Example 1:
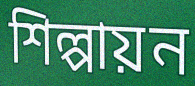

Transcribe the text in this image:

শিল্পায়ন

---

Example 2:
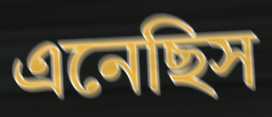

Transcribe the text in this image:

এনেছিস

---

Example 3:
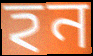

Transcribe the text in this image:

হন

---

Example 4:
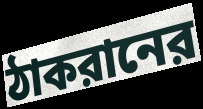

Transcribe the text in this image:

ঠাকরানের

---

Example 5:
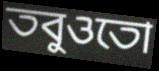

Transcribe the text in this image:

তবুওতো